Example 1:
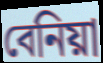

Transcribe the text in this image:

বেনিয়া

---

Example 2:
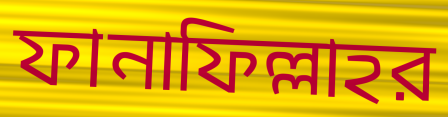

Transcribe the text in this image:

ফানাফিল্লাহর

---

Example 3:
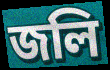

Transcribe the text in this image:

জলি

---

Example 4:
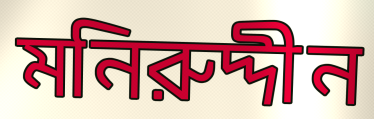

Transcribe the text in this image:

মনিরুদ্দীন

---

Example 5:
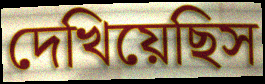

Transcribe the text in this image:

দেখিয়েছিস